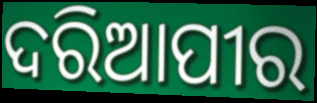
ଦରିଆପୀର